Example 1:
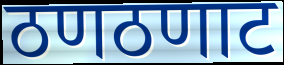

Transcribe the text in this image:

ठणठणाट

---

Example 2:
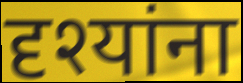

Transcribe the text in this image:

दृश्यांना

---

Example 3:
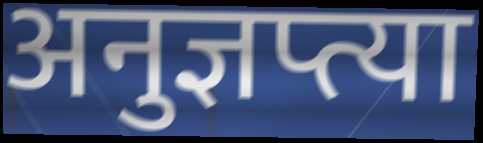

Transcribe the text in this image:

अनुज्ञप्त्या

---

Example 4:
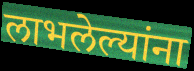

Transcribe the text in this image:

लाभलेल्यांना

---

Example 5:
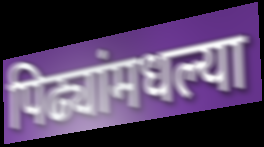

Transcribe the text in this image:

पिढ्यांमधल्या